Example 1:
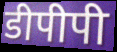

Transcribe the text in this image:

डीपीपी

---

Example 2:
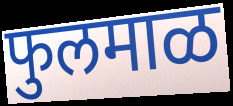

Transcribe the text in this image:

फुलमाळ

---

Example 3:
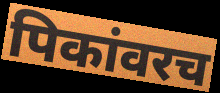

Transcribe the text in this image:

पिकांवरच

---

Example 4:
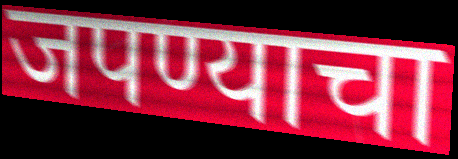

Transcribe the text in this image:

जपण्याचा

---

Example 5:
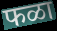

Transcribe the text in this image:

फळा